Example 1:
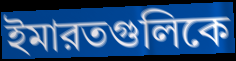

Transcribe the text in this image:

ইমারতগুলিকে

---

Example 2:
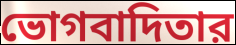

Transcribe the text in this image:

ভোগবাদিতার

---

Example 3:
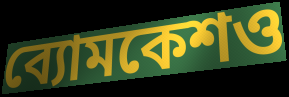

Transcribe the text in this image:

ব্যোমকেশও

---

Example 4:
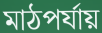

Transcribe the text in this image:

মাঠপর্যায়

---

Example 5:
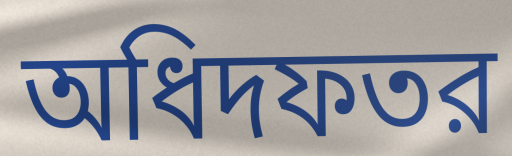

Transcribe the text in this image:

অধিদফতর